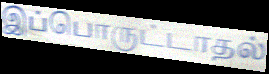
இப்பொருட்டாதல்